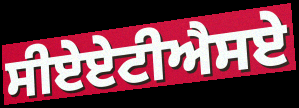
ਸੀਏਏਟੀਐਸਏ